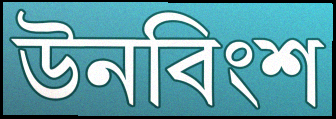
উনবিংশ